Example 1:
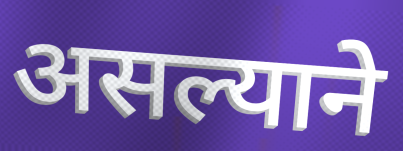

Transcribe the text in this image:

असल्याने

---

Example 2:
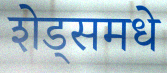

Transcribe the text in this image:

शेड्समधे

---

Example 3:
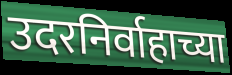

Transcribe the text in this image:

उदरनिर्वाहाच्या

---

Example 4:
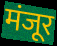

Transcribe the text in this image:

मंजूर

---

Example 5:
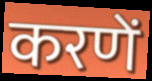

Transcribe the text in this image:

करणें